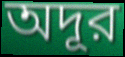
অদূর